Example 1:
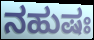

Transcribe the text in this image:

ನಹುಷಃ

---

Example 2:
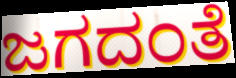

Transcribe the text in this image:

ಜಗದಂತೆ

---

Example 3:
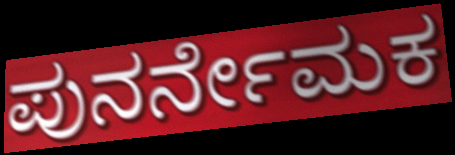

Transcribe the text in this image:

ಪುನರ್ನೇಮಕ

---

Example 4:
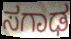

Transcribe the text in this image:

ಸಗಾಢ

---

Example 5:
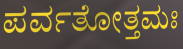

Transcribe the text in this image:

ಪರ್ವತೋತ್ತಮಃ